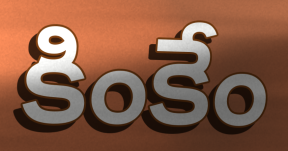
కింకేం